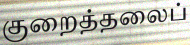
குறைத்தலைப்